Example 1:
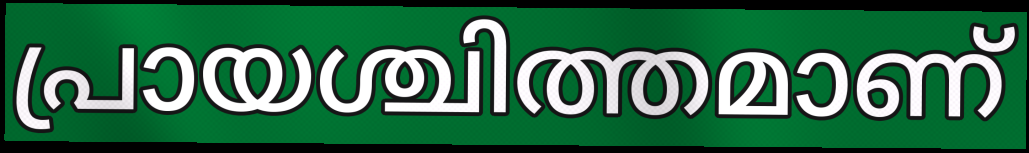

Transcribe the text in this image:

പ്രായശ്ചിത്തമാണ്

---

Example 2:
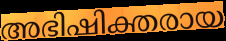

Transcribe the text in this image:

അഭിഷിക്തരായ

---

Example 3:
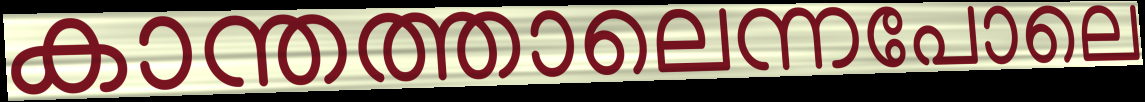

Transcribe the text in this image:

കാന്തത്താലെന്നപോലെ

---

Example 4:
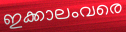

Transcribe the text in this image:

ഇക്കാലംവരെ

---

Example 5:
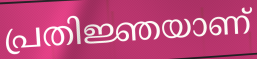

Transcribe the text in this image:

പ്രതിജ്ഞയാണ്